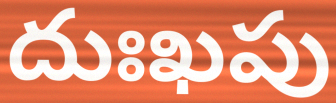
దుఃఖపు